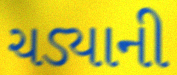
ચડ્યાની